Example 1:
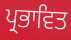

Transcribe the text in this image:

ਪ੍ਰਭਾਵਿਤ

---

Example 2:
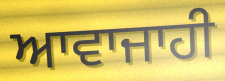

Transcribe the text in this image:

ਆਵਾਜਾਹੀ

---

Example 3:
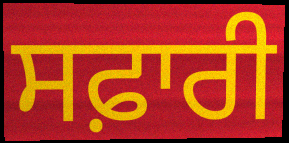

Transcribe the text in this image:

ਸਫ਼ਾਰੀ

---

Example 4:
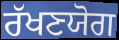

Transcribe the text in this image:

ਰੱਖਣਯੋਗ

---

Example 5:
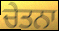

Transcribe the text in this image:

ਚੇਤਨਾ